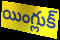
యింగ్లుక్